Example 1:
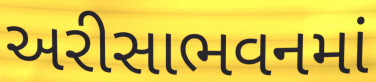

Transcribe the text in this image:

અરીસાભવનમાં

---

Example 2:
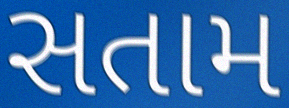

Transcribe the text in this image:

સતામ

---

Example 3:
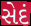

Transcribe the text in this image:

સેદં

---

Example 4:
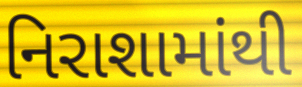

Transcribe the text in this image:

નિરાશામાંથી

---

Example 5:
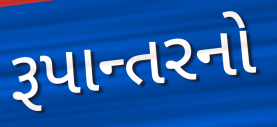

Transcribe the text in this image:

રૂપાન્તરનો